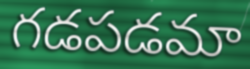
గడపడమా